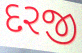
દરજી